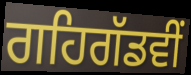
ਗਹਿਗੱਡਵੀਂ